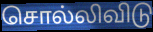
சொல்லிவிடு